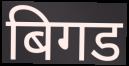
बिगड